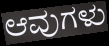
ಆವುಗಳು